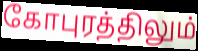
கோபுரத்திலும்